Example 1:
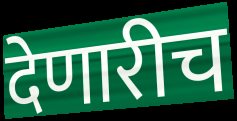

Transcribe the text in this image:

देणारीच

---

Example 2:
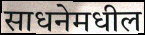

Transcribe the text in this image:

साधनेमधील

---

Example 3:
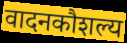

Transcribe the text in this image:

वादनकौशल्य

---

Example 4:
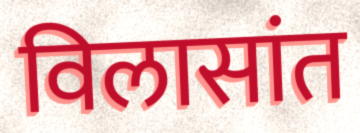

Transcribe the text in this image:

विलासांत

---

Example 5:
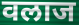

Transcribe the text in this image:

वलाज